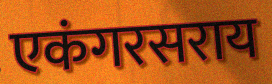
एकंगरसराय